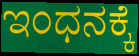
ಇಂಧನಕ್ಕೆ